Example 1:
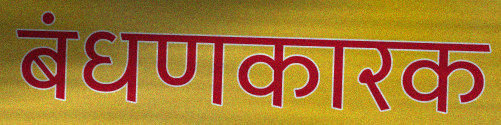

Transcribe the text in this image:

बंधणकारक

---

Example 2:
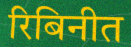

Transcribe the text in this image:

रिबिनीत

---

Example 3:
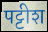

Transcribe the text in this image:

पट्टीश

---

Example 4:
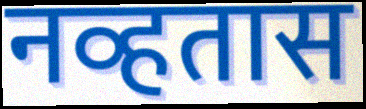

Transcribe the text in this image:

नव्हतास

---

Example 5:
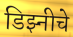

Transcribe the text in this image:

डिझ्नीचे